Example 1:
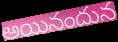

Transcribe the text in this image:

అయినందున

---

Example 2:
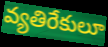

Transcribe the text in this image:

వ్యతిరేకులూ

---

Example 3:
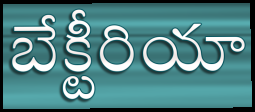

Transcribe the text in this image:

బేక్టీరియా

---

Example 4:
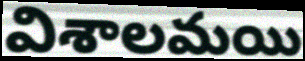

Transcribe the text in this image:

విశాలమయి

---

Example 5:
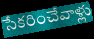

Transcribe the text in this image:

సేకరించేవాళ్లు